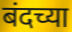
बंदच्या